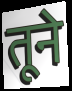
तूने